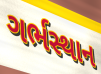
ગર્ભસ્થાન